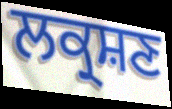
ਲਕ੍ਰਸ਼ਣ